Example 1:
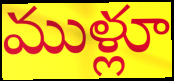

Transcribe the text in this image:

ముళ్లూ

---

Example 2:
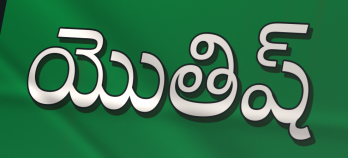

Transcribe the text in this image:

యొతిష్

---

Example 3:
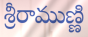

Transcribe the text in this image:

శ్రీరాముణ్ణి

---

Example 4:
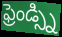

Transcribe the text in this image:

ఫ్రెండ్స్ని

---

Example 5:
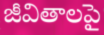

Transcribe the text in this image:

జీవితాలపై